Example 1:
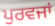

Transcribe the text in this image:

ਪੁਰਵਜਾਂ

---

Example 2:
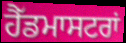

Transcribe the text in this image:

ਹੈੱਡਮਾਸਟਰਾਂ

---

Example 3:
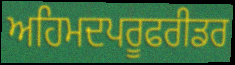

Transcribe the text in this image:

ਅਹਿਮਦਪਰੂਫਰੀਡਰ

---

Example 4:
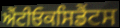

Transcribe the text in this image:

ਐਂਟੀਓਕਸਿਡੈਂਟਸ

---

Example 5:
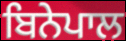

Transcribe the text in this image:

ਬਿਨੇਪਾਲ